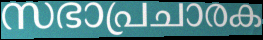
സഭാപ്രചാരക